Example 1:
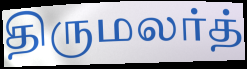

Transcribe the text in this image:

திருமலர்த்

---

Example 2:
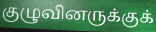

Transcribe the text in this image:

குழுவினருக்குக்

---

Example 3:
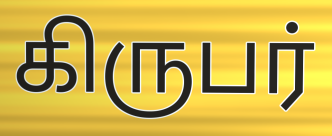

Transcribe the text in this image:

கிருபர்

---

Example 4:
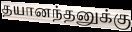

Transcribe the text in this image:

தயானந்தனுக்கு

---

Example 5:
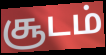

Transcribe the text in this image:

சூடம்